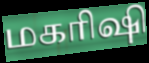
மகரிஷி